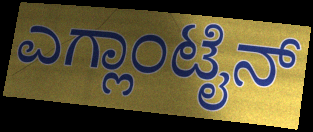
ಎಗ್ಲಾಂಟೈನ್